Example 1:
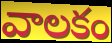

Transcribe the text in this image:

వాలకం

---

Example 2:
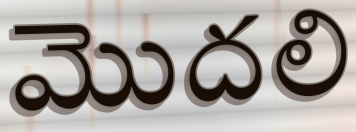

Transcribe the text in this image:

మొదలి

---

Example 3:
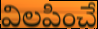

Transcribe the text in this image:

విలపించే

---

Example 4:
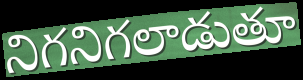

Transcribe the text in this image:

నిగనిగలాడుతూ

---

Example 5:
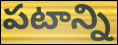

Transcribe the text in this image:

పటాన్ని